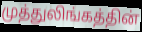
முத்துலிங்கத்தின்